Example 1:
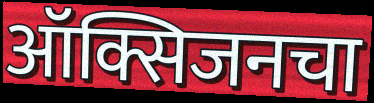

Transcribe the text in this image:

ऑक्सिजनचा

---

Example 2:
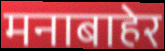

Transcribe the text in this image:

मनाबाहेर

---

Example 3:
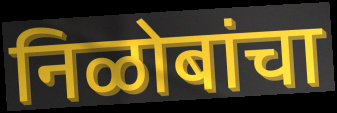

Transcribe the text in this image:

निळोबांचा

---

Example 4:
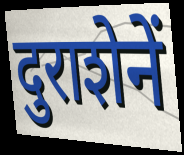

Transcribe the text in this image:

दुराशेनें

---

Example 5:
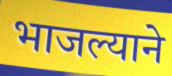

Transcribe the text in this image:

भाजल्याने